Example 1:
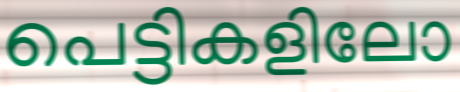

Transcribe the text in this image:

പെട്ടികളിലോ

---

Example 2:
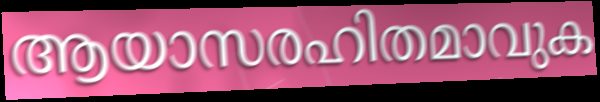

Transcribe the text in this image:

ആയാസരഹിതമാവുക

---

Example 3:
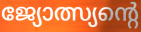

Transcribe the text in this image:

ജ്യോത്സ്യന്റെ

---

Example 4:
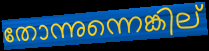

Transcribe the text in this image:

തോന്നുന്നെങ്കില്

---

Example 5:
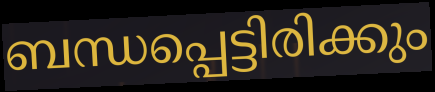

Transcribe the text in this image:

ബന്ധപ്പെട്ടിരിക്കും